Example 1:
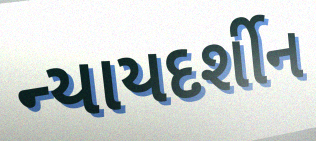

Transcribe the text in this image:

ન્યાયદર્શીન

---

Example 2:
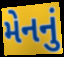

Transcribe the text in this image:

મેનનું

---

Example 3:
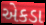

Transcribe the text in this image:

એકડા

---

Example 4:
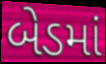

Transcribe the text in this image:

બેડમાં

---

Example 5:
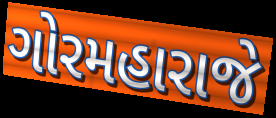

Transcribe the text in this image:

ગોરમહારાજે